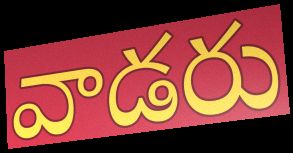
వాడరు